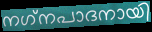
നഗ്‌നപാദനായി